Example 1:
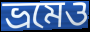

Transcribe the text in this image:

ভ্রমেও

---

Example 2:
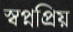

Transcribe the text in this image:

স্বপ্নপ্রিয়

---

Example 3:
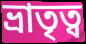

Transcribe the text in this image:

ভ্রাতৃত্ব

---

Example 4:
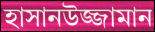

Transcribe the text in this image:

হাসানউজ্জামান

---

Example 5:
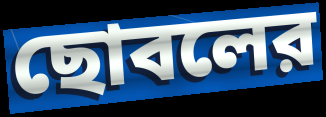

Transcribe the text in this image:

ছোবলের